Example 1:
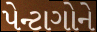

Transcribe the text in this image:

પેન્ટાગોને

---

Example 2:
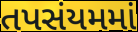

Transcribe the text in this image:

તપસંયમમાં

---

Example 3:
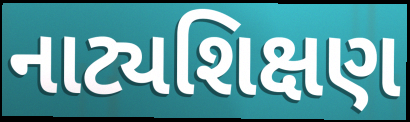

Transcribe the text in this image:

નાટ્યશિક્ષણ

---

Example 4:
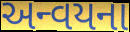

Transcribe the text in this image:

અન્વયના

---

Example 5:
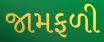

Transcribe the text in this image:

જામફળી